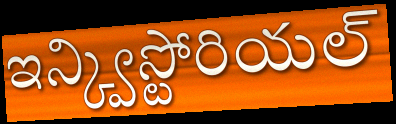
ఇన్క్విస్టోరియల్